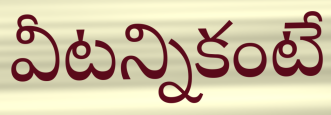
వీటన్నికంటే